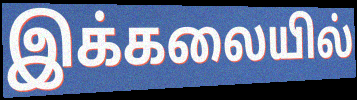
இக்கலையில்